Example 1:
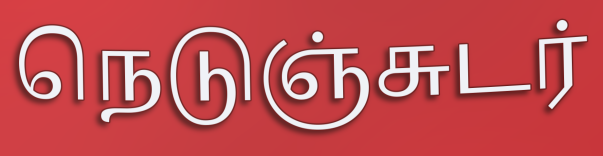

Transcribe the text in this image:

நெடுஞ்சுடர்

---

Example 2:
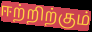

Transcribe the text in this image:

ஈற்றிற்கும்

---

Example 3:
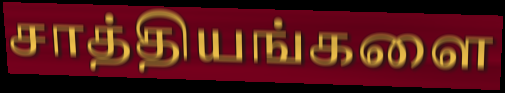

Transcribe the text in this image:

சாத்தியங்களை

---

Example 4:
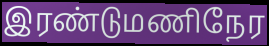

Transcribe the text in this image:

இரண்டுமணிநேர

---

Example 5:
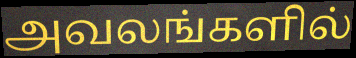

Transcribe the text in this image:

அவலங்களில்